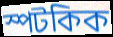
স্পটকিক